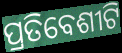
ପ୍ରତିବେଶୀଟି